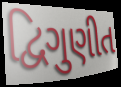
દ્વિગુણીત